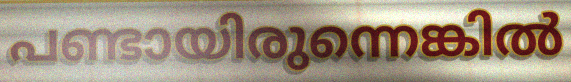
പണ്ടായിരുന്നെങ്കിൽ